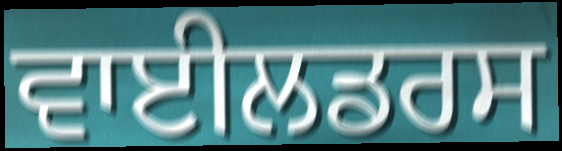
ਵਾਈਲਡਰਸ